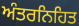
ਅੰਤਰਨਿਹਿਤ